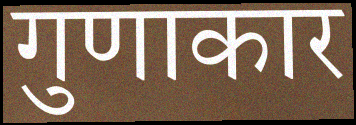
गुणाकार